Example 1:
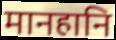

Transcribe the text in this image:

मानहानि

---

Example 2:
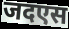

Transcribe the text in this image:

जदएस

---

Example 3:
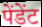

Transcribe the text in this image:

पेंडेंट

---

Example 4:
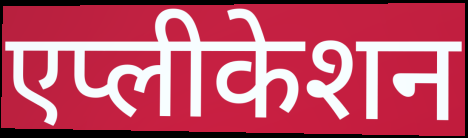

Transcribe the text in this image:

एप्लीकेशन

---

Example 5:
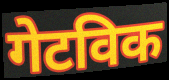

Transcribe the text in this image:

गेटविक